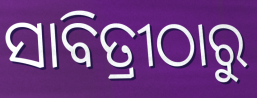
ସାବିତ୍ରୀଠାରୁ